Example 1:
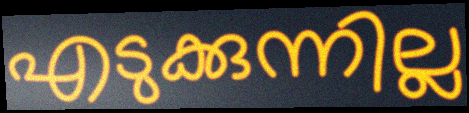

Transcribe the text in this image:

എടുക്കുന്നില്ല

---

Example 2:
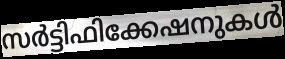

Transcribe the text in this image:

സർട്ടിഫിക്കേഷനുകൾ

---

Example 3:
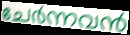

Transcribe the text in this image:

ചേർന്നവൻ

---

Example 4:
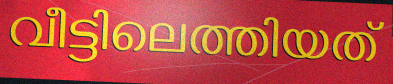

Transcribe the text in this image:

വീട്ടിലെത്തിയത്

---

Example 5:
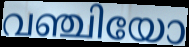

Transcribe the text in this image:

വഞ്ചിയോ